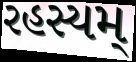
રહસ્યમ્